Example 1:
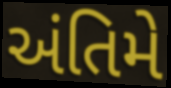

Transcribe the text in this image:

અંતિમે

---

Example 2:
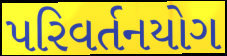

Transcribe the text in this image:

પરિવર્તનયોગ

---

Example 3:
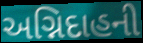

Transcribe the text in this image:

અગ્નિદાહની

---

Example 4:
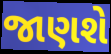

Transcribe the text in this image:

જાણશે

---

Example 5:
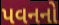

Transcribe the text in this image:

પવનનો